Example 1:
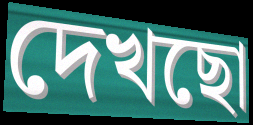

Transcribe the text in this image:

দেখছো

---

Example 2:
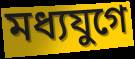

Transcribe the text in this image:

মধ্যযুগে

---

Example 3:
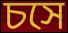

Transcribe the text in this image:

চসে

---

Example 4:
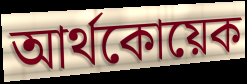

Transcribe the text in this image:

আর্থকোয়েক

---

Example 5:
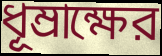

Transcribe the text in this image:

ধূম্রাক্ষের